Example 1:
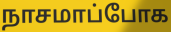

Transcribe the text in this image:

நாசமாப்போக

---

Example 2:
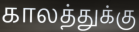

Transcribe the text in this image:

காலத்துக்கு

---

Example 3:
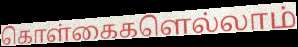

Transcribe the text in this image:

கொள்கைகளெல்லாம்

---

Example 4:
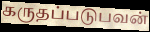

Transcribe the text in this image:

கருதப்படுபவன்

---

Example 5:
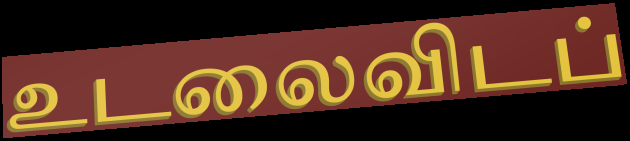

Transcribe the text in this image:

உடலைவிடப்